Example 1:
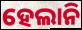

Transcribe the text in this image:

ହେଲାନି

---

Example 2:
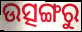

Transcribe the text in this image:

ଉତ୍ସଙ୍ଗରୁ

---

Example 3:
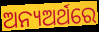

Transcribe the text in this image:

ଅନ୍ୟଅର୍ଥରେ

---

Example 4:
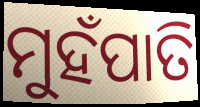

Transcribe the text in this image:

ମୁହଁପାତି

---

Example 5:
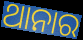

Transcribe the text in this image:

ଥାନାର